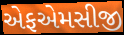
એફએમસીજી